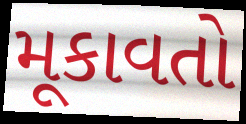
મૂકાવતો